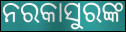
ନରକାସୁରଙ୍କ